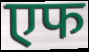
एफ